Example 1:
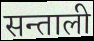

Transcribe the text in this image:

सन्ताली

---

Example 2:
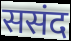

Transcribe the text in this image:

ससंद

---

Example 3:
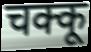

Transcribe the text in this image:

चक्कू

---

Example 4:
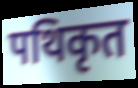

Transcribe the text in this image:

पथिकृत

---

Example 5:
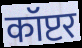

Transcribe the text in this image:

कॉप्टर